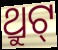
ଥ୍ରୁଟ୍